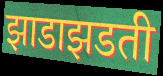
झाडाझडती